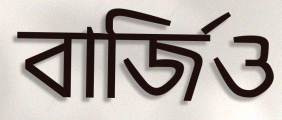
বার্জিও